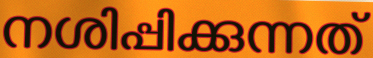
നശിപ്പിക്കുന്നത്